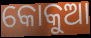
କୋକୁଆ